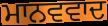
ਮਾਨਵਵਾਦ